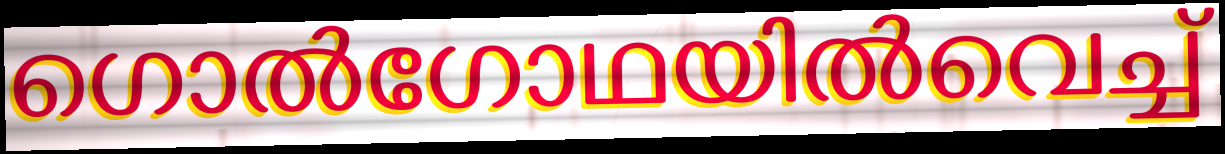
ഗൊൽഗോഥയിൽവെച്ച്